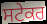
ਸਟੇਕਰ